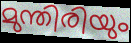
മുന്തിരിയും